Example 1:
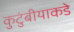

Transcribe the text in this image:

कुटुंबीयाकडे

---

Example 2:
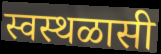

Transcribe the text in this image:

स्वस्थळासी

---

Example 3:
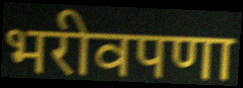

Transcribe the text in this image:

भरीवपणा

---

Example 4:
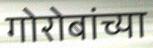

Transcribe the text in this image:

गोरोबांच्या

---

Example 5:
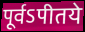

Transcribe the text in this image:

पूर्वऽपीतये